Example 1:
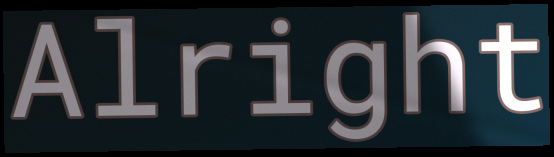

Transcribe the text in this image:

Alright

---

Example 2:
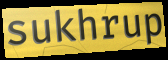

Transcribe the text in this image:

sukhrup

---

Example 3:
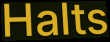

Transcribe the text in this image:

Halts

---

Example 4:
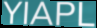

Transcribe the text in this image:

YIAPL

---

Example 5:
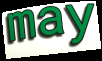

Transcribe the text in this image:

may